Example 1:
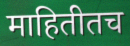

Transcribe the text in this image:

माहितीतच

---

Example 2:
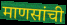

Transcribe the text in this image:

माणसांची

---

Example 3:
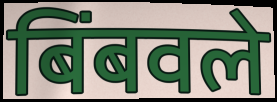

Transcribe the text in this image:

बिंबवले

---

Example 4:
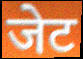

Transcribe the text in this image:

जेट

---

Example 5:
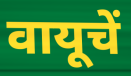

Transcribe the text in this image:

वायूचें